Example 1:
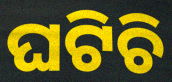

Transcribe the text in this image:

ଘଟିଚି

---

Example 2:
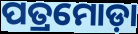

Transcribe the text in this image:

ପତ୍ରମୋଡ଼ା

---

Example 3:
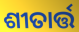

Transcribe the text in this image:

ଶୀତାର୍ତ୍ତ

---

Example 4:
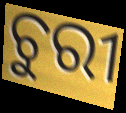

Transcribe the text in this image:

ଚୁରୀ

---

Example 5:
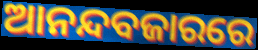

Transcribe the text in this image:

ଆନନ୍ଦବଜାରରେ